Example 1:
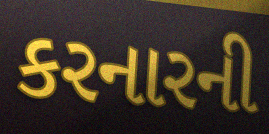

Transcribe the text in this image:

કરનારની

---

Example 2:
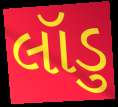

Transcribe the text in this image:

લૉડુ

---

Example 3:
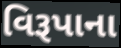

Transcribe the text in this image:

વિરૂપાના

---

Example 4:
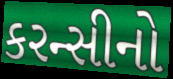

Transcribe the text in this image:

કરન્સીનો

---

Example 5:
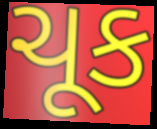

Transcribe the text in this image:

ચૂક